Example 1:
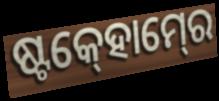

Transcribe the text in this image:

ଷ୍ଟକ୍‍ହୋମ୍‍ରେ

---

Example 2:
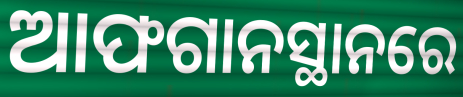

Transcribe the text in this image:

ଆଫଗାନସ୍ଥାନରେ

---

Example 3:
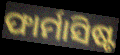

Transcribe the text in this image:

ଫାର୍ମାସିଷ୍ଟ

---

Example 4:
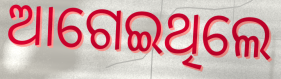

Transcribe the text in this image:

ଆଗେଇଥିଲେ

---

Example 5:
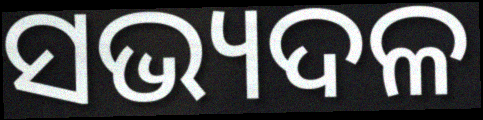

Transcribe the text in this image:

ସଭ୍ୟଦଳ